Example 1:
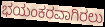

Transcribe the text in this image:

ಭಯಂಕರವಾಗಿರಲು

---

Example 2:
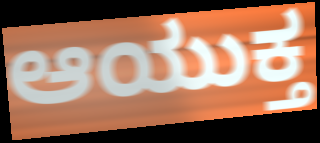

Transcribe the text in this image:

ಆಯುಕ್ತ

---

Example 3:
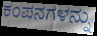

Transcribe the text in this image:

ಕಂಪನಗಳನ್ನು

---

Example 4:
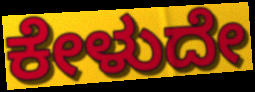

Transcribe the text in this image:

ಕೇಳುದೇ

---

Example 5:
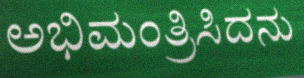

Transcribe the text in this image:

ಅಭಿಮಂತ್ರಿಸಿದನು